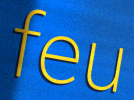
feu